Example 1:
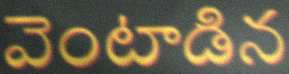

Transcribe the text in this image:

వెంటాడిన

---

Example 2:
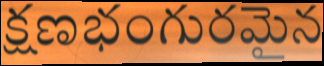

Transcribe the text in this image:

క్షణభంగురమైన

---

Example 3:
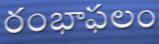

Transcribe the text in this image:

రంభాఫలం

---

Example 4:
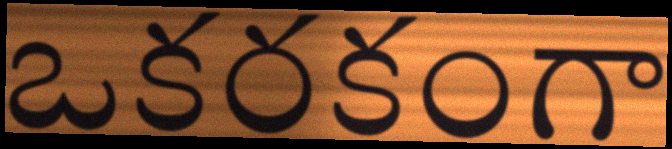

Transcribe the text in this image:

ఒకరకంగా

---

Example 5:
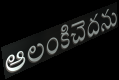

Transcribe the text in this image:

ఆలంకిచెదను